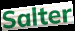
Salter